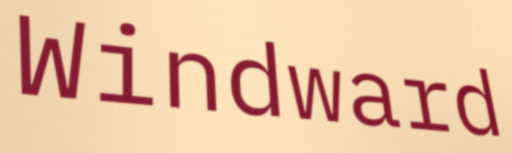
Windward